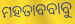
ମହତାବବାବୁ